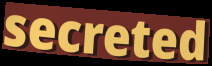
secreted